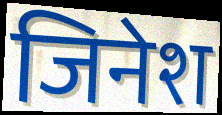
जिनेश